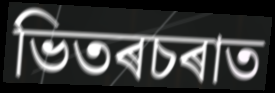
ভিতৰচৰাত